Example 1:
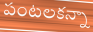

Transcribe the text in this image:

పంటలకన్నా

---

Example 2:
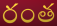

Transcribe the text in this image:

రంత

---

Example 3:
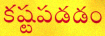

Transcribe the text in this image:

కష్టపడడం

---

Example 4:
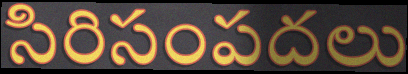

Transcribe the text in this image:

సిరిసంపదలు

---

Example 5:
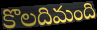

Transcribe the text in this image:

కొలదిమంది